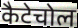
कैटेचोल